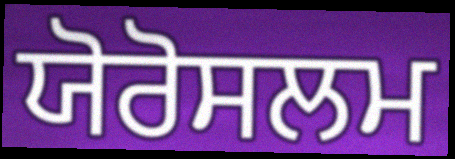
ਯੋਰੋਸਲਮ